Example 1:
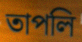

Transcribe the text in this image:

তাপলি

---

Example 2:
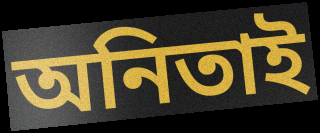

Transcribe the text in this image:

অনিতাই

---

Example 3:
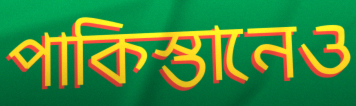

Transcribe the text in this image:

পাকিস্তানেও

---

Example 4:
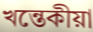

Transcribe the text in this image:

খন্তেকীয়া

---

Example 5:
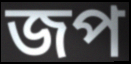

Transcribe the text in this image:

জপ